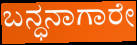
ಬನ್ಧನಾಗಾರೇ